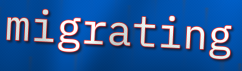
migrating